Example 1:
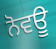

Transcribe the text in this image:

ਨੋਵਊ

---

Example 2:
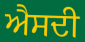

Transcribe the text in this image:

ਐਸਦੀ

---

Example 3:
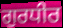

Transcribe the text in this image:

ਗੁਰਧੀਰ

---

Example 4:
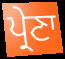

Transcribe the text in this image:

ਪ੍ਰੇਣਾ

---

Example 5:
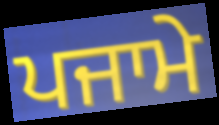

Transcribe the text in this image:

ਪਜਾਮੇ